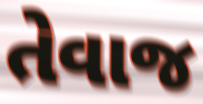
તેવાજ